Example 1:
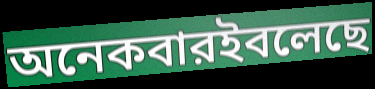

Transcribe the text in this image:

অনেকবারইবলেছে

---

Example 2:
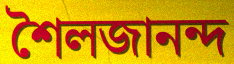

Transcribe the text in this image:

শৈলজানন্দ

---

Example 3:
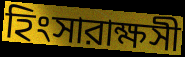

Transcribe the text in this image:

হিংসারাক্ষসী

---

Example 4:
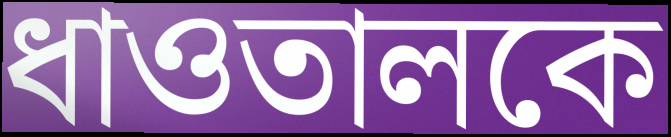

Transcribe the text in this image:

ধাওতালকে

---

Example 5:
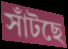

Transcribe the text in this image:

সাঁটছে